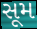
સૂમ